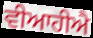
ਵੀਆਹੀਐ